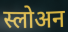
स्लोअन